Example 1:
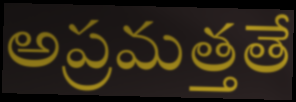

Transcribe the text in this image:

అప్రమత్తతే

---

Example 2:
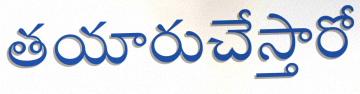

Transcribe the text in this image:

తయారుచేస్తారో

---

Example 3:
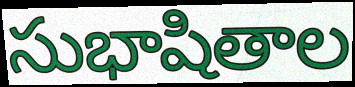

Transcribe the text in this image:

సుభాషితాల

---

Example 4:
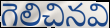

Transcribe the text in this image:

గెలిచినవి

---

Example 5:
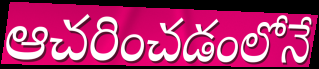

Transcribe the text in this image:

ఆచరించడంలోనే